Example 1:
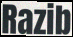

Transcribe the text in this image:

Razib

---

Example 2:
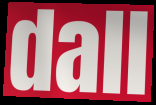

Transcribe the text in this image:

dall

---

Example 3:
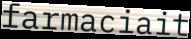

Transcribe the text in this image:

farmaciait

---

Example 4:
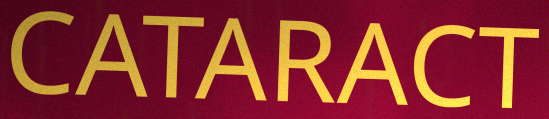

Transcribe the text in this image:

CATARACT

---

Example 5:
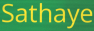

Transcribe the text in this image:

Sathaye